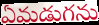
ఏమడుగను